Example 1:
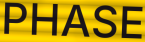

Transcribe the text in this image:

PHASE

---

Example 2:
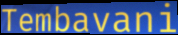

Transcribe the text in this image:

Tembavani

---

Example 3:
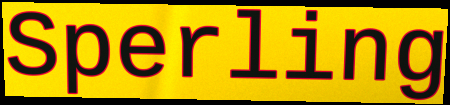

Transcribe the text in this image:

Sperling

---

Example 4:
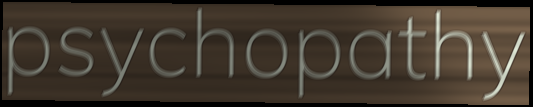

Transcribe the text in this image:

psychopathy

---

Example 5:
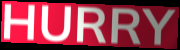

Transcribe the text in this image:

HURRY